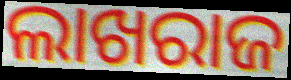
ଲାଖରାଜ